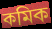
কমিক